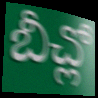
బీచ్లో